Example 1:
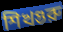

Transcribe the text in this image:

শিখগুরু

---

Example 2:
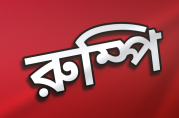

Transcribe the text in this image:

রুম্পি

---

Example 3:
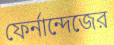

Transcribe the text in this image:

ফের্নান্দেজের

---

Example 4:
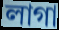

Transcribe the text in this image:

লাগা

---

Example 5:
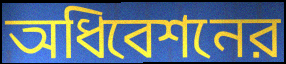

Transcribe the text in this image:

অধিবেশনের